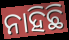
ନାହିଛି